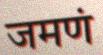
जमणं